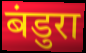
बंडुरा